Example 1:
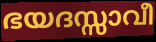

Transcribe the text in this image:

ഭയദസ്സാവീ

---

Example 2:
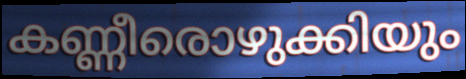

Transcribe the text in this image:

കണ്ണീരൊഴുക്കിയും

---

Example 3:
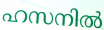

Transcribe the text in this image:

ഹസനിൽ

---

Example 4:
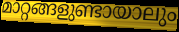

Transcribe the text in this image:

മാറ്റങ്ങളുണ്ടായാലും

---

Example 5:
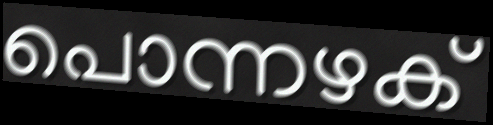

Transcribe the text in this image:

പൊന്നഴക്